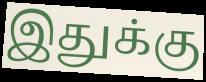
இதுக்கு